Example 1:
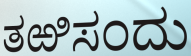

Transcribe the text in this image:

ತಱಿಸಂದು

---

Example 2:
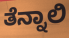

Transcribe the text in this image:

ತೆನ್ನಾಲಿ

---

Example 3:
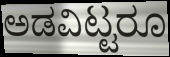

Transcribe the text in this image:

ಅಡವಿಟ್ಟರೂ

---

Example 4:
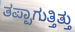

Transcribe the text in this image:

ತಪ್ಪಾಗುತ್ತಿತ್ತು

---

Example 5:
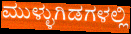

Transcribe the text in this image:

ಮುಳ್ಳುಗಿಡಗಳಲ್ಲಿ